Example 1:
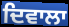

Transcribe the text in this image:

ਦਿਵਾਲਾ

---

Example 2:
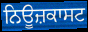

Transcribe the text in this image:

ਨਿਊਜ਼ਕਾਸਟ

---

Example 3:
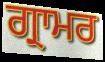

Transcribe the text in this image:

ਗ੍ਰਾਮਰ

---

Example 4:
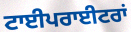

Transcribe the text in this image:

ਟਾਈਪਰਾਈਟਰਾਂ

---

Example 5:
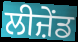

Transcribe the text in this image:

ਲੀਜ਼ੇਂਡ